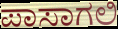
ಪಾಸಾಗಲಿ